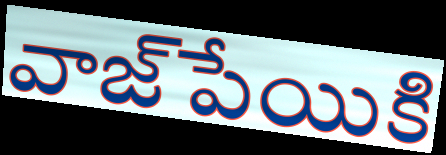
వాజ్‌పేయికి